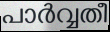
പാർവ്വതീ